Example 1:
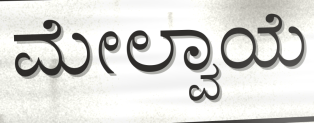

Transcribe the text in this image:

ಮೇಲ್ವಾಯೆ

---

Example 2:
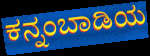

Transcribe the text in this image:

ಕನ್ನಂಬಾಡಿಯ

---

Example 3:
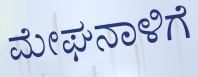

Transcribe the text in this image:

ಮೇಘನಾಳಿಗೆ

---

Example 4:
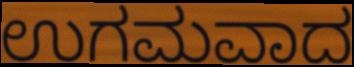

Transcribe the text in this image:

ಉಗಮವಾದ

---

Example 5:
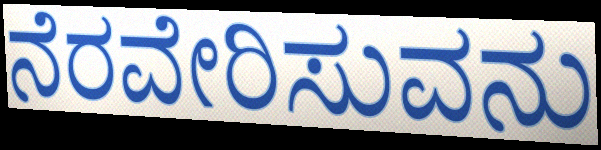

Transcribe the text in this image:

ನೆರವೇರಿಸುವನು